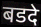
बडदे